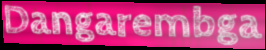
Dangarembga